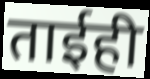
ताईही